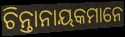
ଚିନ୍ତାନାୟକମାନେ